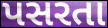
પસરતા